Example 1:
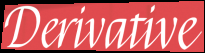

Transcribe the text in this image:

Derivative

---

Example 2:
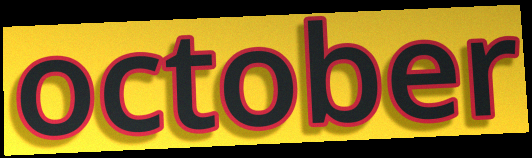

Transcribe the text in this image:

october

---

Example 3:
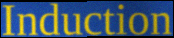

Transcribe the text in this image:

Induction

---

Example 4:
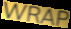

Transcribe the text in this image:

WRAP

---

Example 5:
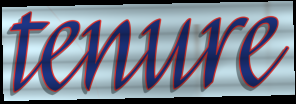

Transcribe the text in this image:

tenure